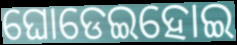
ଘୋଡେଇହୋଇ